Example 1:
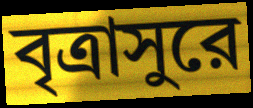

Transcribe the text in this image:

বৃত্রাসুরে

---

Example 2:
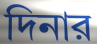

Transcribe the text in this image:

দিনার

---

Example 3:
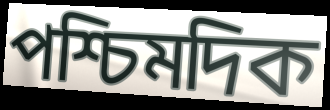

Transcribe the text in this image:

পশ্চিমদিক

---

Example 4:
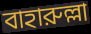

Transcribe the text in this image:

বাহারুল্লা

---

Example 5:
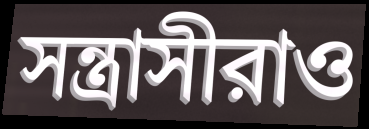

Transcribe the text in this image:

সন্ত্রাসীরাও